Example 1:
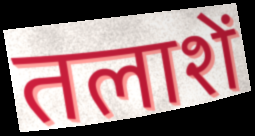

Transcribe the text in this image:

तलाशें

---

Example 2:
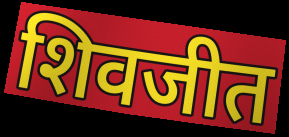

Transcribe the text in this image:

शिवजीत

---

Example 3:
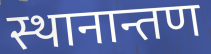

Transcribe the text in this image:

स्थानान्तण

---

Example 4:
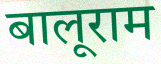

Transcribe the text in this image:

बालूराम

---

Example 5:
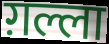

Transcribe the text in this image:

ग़ल्ला